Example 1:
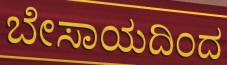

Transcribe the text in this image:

ಬೇಸಾಯದಿಂದ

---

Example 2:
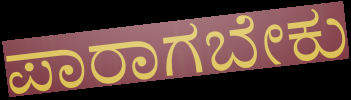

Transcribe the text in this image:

ಪಾರಾಗಬೇಕು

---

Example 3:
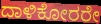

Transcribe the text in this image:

ದಾಳಿಕೋರರೇ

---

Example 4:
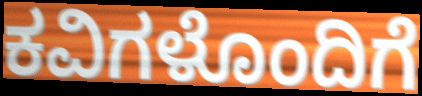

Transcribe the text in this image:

ಕವಿಗಳೊಂದಿಗೆ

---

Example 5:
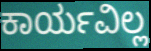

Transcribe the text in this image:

ಕಾರ್ಯವಿಲ್ಲ